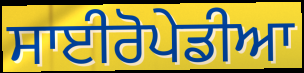
ਸਾਈਰੋਪੇਡੀਆ